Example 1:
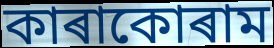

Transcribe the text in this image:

কাৰাকোৰাম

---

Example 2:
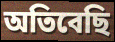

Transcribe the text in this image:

অতিবেছি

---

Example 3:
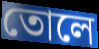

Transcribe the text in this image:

তোলে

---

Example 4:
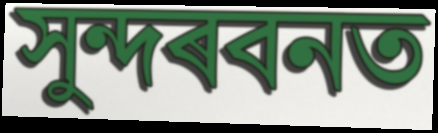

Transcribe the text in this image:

সুন্দৰবনত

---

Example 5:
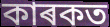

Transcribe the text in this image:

কাৰকত